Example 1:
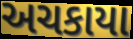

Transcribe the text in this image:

અચકાયા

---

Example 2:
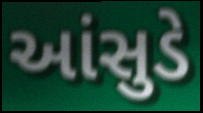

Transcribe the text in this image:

આંસુડે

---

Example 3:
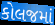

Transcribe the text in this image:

કોલજમાં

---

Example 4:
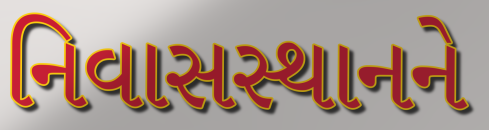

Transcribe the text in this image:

નિવાસસ્થાનને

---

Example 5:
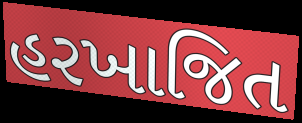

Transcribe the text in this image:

હરખાજિત